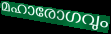
മഹാരോഗവും